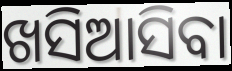
ଖସିଆସିବା